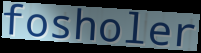
fosholer